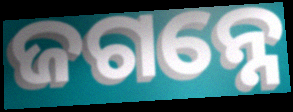
ଜଗନ୍ନେ